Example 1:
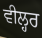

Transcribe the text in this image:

ਵੀਲ੍ਹਰ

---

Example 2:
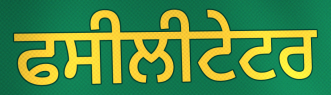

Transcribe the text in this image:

ਫਸੀਲੀਟੇਟਰ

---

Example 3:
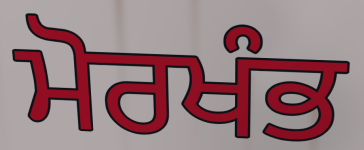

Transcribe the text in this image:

ਮੋਰਖੰਭ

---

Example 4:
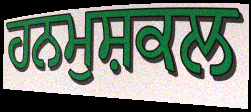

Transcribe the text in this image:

ਹਨਮੁਸ਼ਕਲ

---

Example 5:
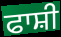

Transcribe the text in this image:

ਫਾਸ਼ੀ